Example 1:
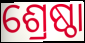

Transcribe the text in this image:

ଶ୍ରେଷ୍ଠା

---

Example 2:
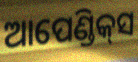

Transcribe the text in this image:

ଆପେଣ୍ଡିକ୍‌ସ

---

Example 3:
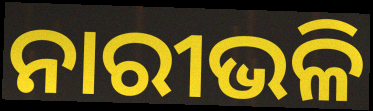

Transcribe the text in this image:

ନାରୀଭଳି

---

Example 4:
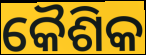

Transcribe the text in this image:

କୈଶିକ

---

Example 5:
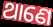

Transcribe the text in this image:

ଥାଣେ